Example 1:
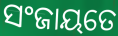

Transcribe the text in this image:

ସଂଜାୟତେ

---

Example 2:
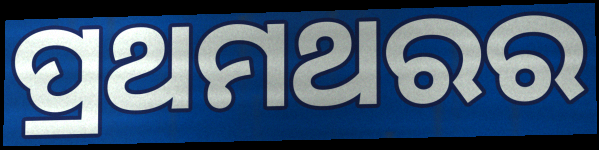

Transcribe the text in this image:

ପ୍ରଥମଥରର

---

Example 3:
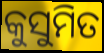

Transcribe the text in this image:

କୁସୁମିତ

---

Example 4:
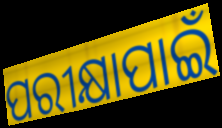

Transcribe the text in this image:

ପରୀକ୍ଷାପାଇଁ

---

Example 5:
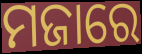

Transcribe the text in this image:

ମଜାରେ